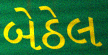
બેઠેલ